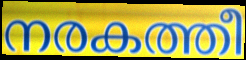
നരകത്തീ